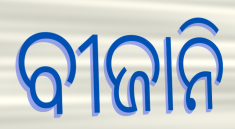
ବୀଜାନି